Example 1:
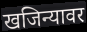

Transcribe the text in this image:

खजिन्यावर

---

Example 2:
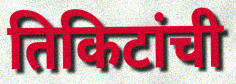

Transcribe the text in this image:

तिकिटांची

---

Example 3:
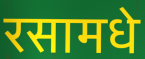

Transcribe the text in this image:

रसामधे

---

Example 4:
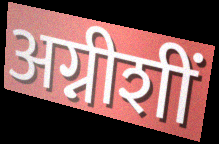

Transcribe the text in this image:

अग्नीशीं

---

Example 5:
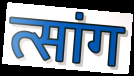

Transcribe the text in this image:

त्सांग